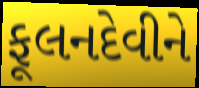
ફૂલનદેવીને